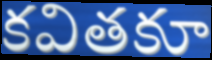
కవితకూ